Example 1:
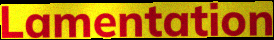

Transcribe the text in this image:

Lamentation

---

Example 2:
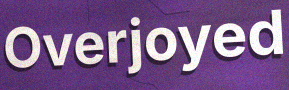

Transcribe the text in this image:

Overjoyed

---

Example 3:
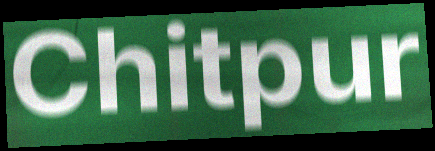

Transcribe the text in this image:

Chitpur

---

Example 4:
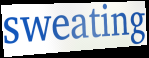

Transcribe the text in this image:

sweating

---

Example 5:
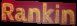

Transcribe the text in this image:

Rankin